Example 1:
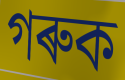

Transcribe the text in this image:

গৰুক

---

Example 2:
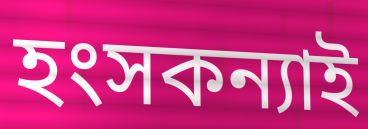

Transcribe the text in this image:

হংসকন্যাই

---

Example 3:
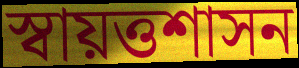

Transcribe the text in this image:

স্বায়ত্তশাসন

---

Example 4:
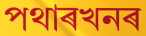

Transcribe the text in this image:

পথাৰখনৰ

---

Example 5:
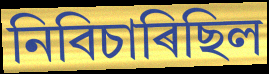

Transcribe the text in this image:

নিবিচাৰিছিল